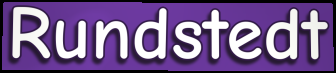
Rundstedt